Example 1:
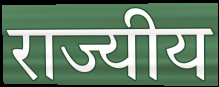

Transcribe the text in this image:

राज्‍यीय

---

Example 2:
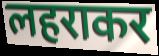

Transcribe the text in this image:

लहराकर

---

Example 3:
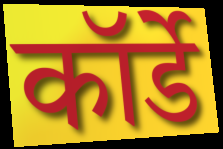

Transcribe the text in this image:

कॉर्डे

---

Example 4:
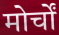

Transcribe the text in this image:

मोर्चों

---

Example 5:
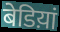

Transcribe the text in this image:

बेडिय़ां